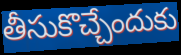
తీసుకొచ్చేందుకు